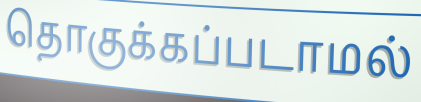
தொகுக்கப்படாமல்